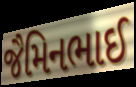
જૈમિનભાઈ